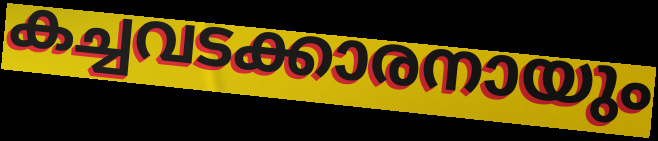
കച്ചവടക്കാരനായും